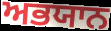
ਅਭਯਾਨ